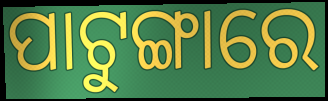
ପାଟୁଙ୍ଗାରେ